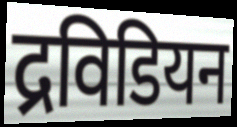
द्रविडियन